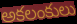
అకలంకులు